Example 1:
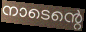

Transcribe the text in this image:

നാടെന്റെ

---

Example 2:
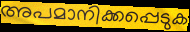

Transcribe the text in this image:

അപമാനിക്കപ്പെടുക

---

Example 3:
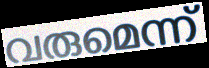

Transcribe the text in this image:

വരുമെന്ന്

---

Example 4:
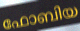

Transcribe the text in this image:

ഫോബിയ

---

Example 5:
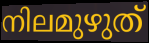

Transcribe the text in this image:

നിലമുഴുത്